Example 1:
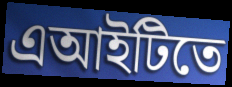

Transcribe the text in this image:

এআইটিতে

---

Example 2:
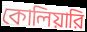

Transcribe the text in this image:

কোলিয়ারি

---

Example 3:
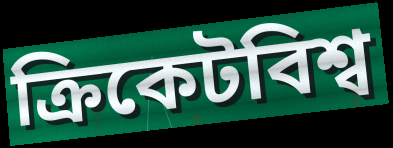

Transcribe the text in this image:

ক্রিকেটবিশ্ব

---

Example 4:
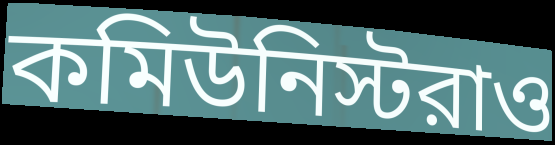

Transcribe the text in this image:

কমিউনিস্টরাও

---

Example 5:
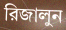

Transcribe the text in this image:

রিজালুন